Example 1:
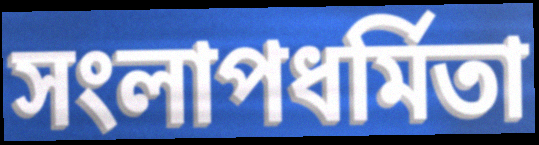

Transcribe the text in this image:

সংলাপধর্মিতা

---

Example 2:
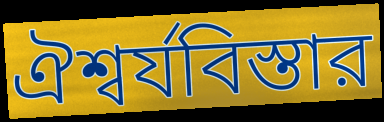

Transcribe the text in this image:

ঐশ্বর্যবিস্তার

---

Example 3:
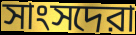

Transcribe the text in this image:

সাংসদেরা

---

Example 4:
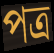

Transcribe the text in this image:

পত্র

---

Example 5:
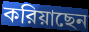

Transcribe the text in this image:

করিয়াছেন